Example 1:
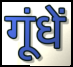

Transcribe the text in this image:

गूंधें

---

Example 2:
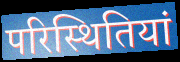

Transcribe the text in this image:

परिस्थितियां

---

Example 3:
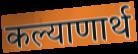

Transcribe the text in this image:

कल्याणार्थ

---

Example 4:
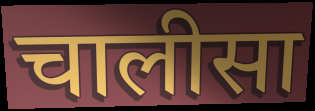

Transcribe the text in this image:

चालीसा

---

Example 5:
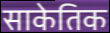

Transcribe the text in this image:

साकेतिक